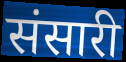
संसारी